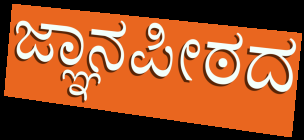
ಜ್ಞಾನಪೀಠದ